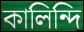
কালিন্দি